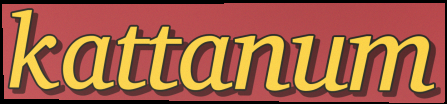
kattanum